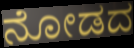
ನೋಡದ